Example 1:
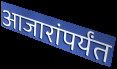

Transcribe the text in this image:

आजारांपर्यंत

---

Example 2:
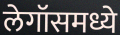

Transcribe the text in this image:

लेगॉसमध्ये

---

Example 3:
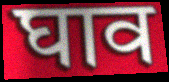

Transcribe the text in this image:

घाव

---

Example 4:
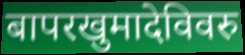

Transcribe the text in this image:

बापरखुमादेविवरु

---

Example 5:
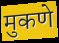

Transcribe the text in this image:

मुकणे